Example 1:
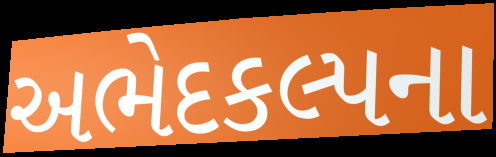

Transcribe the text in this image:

અભેદકલ્પના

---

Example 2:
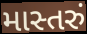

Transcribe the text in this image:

માસ્તરું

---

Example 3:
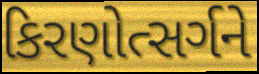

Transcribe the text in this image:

કિરણોત્સર્ગને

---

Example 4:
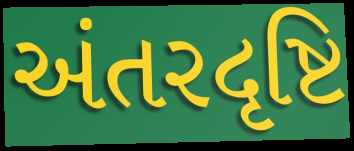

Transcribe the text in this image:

અંતરદૃષ્ટિ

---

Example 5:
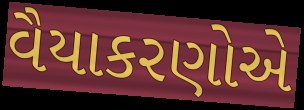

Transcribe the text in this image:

વૈયાકરણોએ